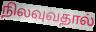
நிலவுவதால்